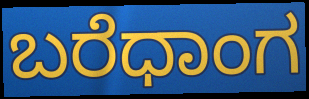
ಬರೆಧಾಂಗ